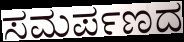
ಸಮರ್ಪಣದ